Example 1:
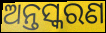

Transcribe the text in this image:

ଅନ୍ତସ୍କରଣ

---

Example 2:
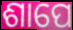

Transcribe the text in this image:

ଶାପେ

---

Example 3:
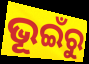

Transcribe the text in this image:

ଭୂଇଁରୁ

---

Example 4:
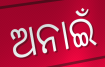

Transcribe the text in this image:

ଅନାଇଁ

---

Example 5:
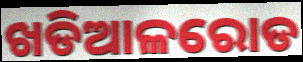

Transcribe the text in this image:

ଖଡିଆଳରୋଡ